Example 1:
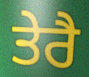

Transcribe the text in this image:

ਤੇਰੈ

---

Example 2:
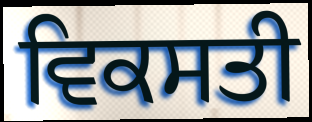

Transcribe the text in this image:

ਵਿਕਸਤੀ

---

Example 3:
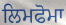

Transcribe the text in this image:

ਲਿਮਫੋਮਾ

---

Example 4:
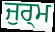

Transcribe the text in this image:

ਜੁਰ੍ਮ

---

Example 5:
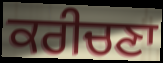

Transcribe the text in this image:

ਕਰੀਚਣਾ